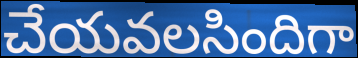
చేయవలసిందిగా